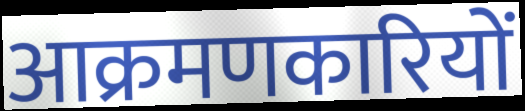
आक्रमणकारियों